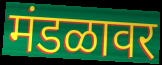
मंडळावर